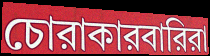
চোরাকারবারিরা